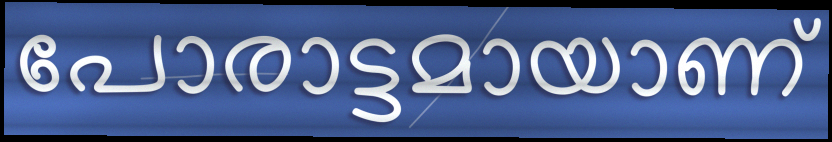
പോരാട്ടമായാണ്